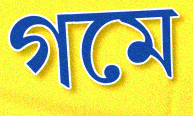
গমে